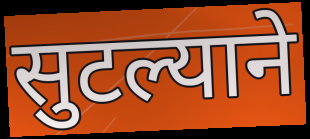
सुटल्याने